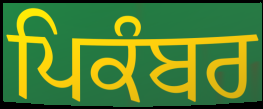
ਪਿਕੰਬਰ